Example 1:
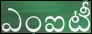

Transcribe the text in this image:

ఎంఐటీ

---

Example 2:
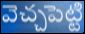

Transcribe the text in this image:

వెచ్చపెట్టి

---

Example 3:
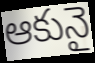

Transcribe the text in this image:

ఆకునై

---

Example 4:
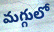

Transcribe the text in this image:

మగ్గులో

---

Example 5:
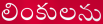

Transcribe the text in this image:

లింకులను